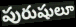
పురుషులూ